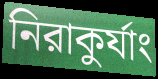
নিরাকুর্যাং